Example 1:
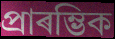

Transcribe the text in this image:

প্ৰাৰম্ভিক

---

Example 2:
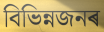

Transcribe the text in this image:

বিভিন্নজনৰ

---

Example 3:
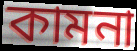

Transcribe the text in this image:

কামনা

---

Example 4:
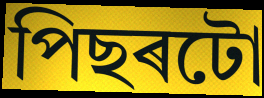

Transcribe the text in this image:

পিছৰটো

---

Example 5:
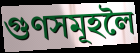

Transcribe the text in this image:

গুণসমূহলৈ